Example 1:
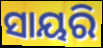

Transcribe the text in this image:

ସାୟରି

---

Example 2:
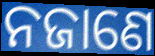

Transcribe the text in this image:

ନଜାଣେ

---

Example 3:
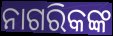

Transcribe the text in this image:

ନାଗରିକଙ୍କ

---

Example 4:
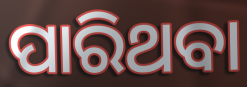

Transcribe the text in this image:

ପାରିଥବା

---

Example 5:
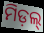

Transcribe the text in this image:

ମିଡ଼ଲ୍